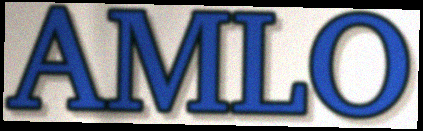
AMLO